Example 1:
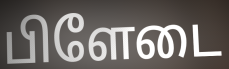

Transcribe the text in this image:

பிளேடை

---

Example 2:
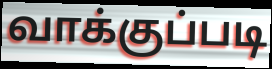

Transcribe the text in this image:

வாக்குப்படி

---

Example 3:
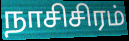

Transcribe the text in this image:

நாசிசிரம்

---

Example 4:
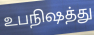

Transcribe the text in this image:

உபநிஷத்து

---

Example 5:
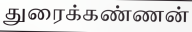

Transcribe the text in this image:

துரைக்கண்ணன்